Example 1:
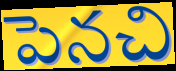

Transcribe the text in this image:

పెనచి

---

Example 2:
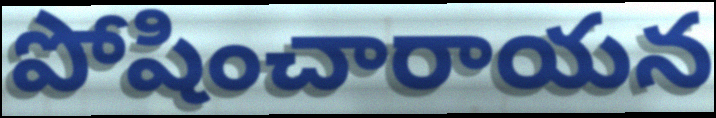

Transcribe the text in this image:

పోషించారాయన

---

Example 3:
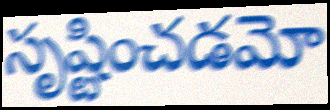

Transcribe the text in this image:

సృష్టించడమో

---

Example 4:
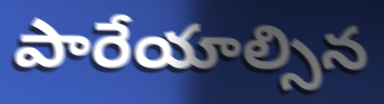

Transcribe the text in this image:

పారేయాల్సిన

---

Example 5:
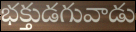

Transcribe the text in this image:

భక్తుడగువాడు